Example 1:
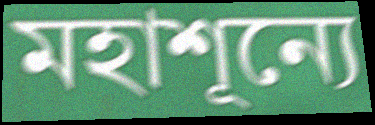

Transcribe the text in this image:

মহাশূন্যে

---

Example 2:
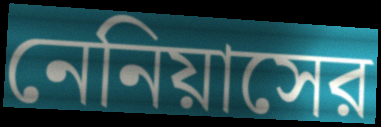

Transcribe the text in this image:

নেনিয়াসের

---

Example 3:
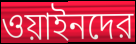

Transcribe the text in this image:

ওয়াইনদের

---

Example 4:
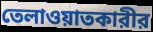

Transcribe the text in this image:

তেলাওয়াতকারীর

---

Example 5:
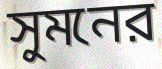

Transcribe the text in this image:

সুমনের